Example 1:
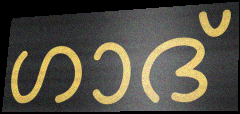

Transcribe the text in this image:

ഗാദ്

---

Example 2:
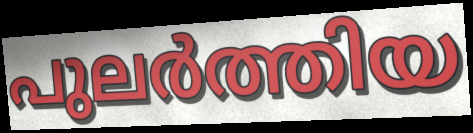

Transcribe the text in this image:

പുലർത്തിയ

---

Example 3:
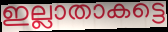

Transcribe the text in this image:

ഇല്ലാതാകട്ടെ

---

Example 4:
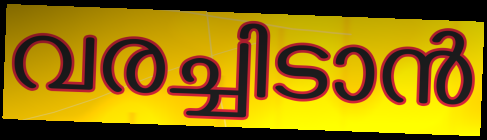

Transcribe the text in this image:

വരച്ചിടാൻ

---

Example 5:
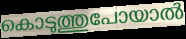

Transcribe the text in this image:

കൊടുത്തുപോയാൽ